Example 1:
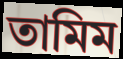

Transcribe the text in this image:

তামিম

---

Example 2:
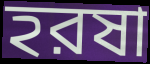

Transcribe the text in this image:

হরষা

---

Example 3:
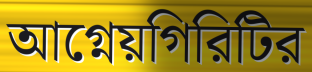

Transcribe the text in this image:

আগ্নেয়গিরিটির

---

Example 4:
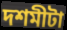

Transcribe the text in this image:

দশমীটা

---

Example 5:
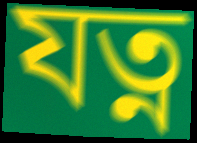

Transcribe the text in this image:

যত্ন